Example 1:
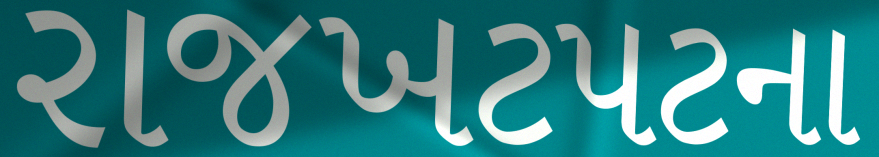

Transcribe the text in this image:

રાજખટપટના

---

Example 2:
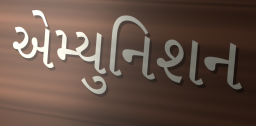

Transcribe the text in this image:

એમ્યુનિશન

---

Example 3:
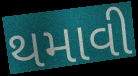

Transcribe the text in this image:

થમાવી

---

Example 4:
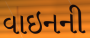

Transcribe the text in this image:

વાઇનની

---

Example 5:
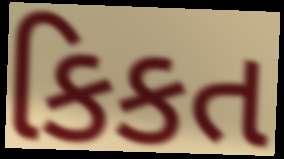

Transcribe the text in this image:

કિકત